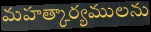
మహత్కార్యములను